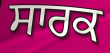
ਸਾਰਕ